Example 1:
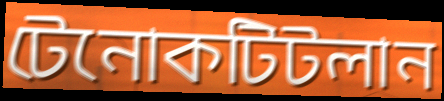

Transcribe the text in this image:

টেনোকটিটলান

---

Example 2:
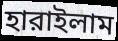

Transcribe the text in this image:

হারাইলাম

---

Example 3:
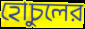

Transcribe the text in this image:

হোচুলের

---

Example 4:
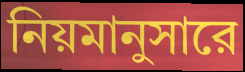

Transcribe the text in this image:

নিয়মানুসারে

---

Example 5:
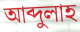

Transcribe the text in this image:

আব্দুলাহ